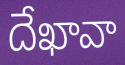
దేఖావా